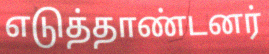
எடுத்தாண்டனர்